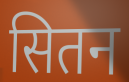
सितन